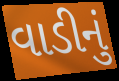
વાડીનું